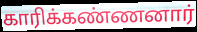
காரிக்கண்ணனார்